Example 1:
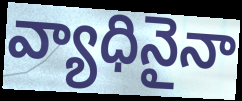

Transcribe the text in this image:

వ్యాధినైనా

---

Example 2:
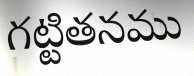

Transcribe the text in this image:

గట్టితనము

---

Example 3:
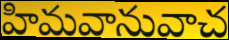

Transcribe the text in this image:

హిమవానువాచ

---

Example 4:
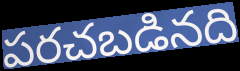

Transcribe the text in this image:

పరచబడినది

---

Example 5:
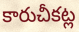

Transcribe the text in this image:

కారుచీకట్ల